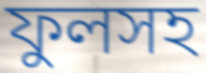
ফুলসহ